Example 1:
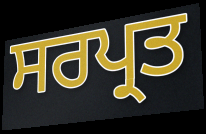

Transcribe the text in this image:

ਸਰਪ੍ਰਤ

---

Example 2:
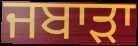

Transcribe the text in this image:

ਜਬਾੜਾ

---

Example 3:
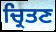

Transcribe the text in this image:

ਚ੍ਰਿਤਣ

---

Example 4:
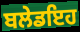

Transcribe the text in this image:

ਬਲੇਡਇਹ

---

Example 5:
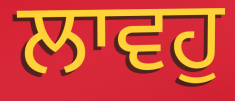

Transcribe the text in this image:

ਲਾਵਹੁ